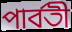
পাৰ্বতী